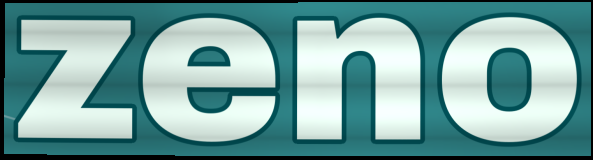
zeno